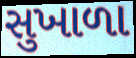
સુખાળા